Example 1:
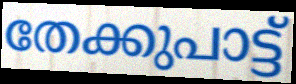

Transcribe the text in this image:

തേക്കുപാട്ട്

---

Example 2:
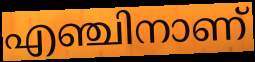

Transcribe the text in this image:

എഞ്ചിനാണ്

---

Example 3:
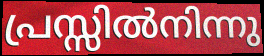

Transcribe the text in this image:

പ്രസ്സിൽനിന്നു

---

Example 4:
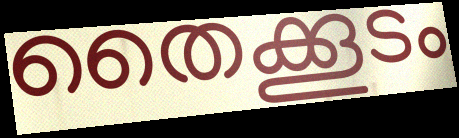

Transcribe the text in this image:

തൈക്കൂടം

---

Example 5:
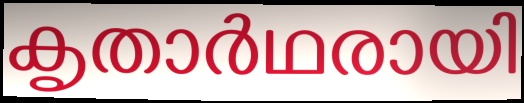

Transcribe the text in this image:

കൃതാർഥരായി